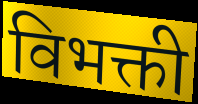
विभक्ती